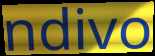
ndivo